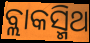
ବ୍ଲାକସ୍ମିଥ